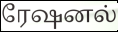
ரேஷனல்